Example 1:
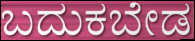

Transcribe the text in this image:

ಬದುಕಬೇಡ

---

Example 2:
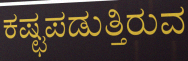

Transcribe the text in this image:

ಕಷ್ಟಪಡುತ್ತಿರುವ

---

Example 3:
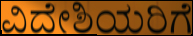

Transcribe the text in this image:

ವಿದೇಶಿಯರಿಗೆ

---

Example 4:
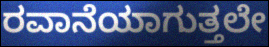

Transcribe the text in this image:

ರವಾನೆಯಾಗುತ್ತಲೇ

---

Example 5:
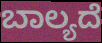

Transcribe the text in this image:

ಬಾಲ್ಯದೆ